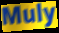
Muly